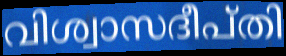
വിശ്വാസദീപ്തി